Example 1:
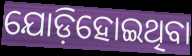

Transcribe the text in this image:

ଯୋଡ଼ିହୋଇଥିବା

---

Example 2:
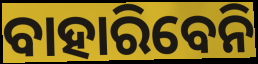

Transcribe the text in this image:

ବାହାରିବେନି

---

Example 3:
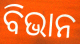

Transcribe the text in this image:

ବିଭାନ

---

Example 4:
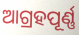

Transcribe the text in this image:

ଆଗ୍ରହପୂର୍ଣ୍ଣ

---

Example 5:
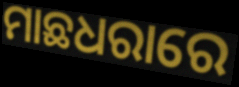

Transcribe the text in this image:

ମାଛଧରାରେ